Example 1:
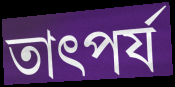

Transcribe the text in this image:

তাৎপৰ্য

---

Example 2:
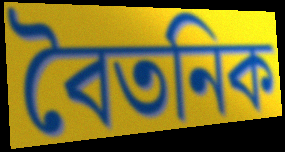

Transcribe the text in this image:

বৈতনিক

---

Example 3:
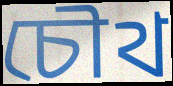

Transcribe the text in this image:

চৌথ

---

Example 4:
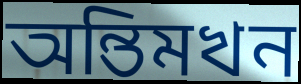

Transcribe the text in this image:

অন্তিমখন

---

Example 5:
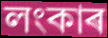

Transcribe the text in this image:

লংকাৰ